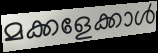
മക്കളേക്കാൾ